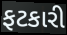
ફટકારી